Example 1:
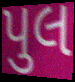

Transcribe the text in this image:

પુલ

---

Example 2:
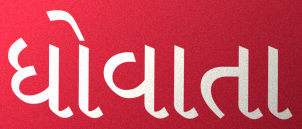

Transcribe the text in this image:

ધોવાતા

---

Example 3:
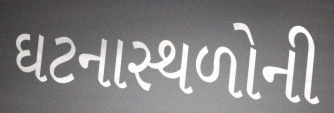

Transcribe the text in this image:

ઘટનાસ્થળોની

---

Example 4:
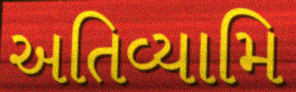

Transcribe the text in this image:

અતિવ્યામિ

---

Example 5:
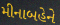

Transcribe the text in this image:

મીનાબહેને